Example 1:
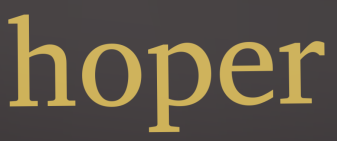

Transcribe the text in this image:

hoper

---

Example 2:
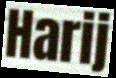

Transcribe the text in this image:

Harij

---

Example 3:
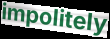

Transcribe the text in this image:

impolitely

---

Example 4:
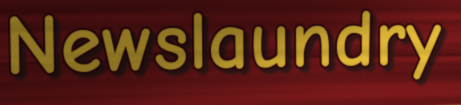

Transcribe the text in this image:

Newslaundry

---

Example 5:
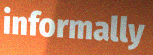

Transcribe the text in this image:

informally